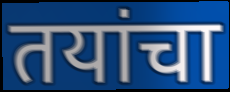
तयांचा